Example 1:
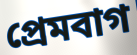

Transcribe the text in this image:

প্রেমবাগ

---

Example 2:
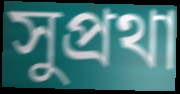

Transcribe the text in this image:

সুপ্রথা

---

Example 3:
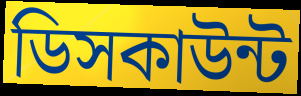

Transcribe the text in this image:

ডিসকাউন্ট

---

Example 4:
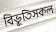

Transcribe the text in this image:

বিভূতিসকল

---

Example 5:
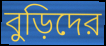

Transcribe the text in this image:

বুড়িদের